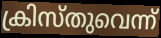
ക്രിസ്തുവെന്ന്